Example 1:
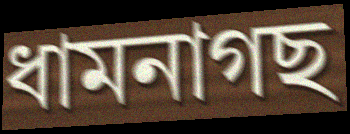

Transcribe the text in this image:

ধামনাগছ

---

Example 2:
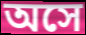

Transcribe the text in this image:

অসে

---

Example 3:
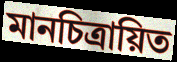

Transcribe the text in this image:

মানচিত্রায়িত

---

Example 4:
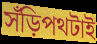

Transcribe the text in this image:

সঁড়িপথটাই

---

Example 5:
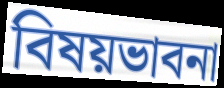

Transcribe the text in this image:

বিষয়ভাবনা